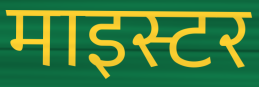
माइस्टर